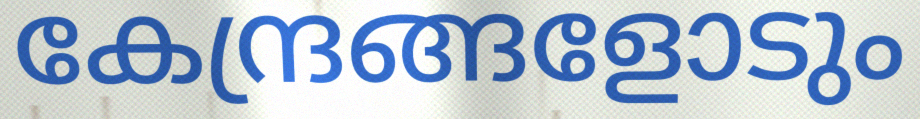
കേന്ദ്രങ്ങളോടും